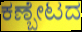
ಕಣ್ಬೇಟದ